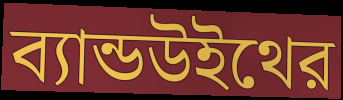
ব্যান্ডউইথের